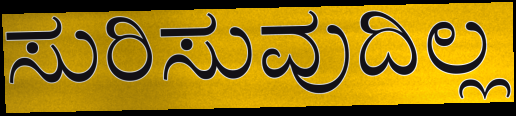
ಸುರಿಸುವುದಿಲ್ಲ